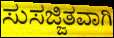
ಸುಸಜ್ಜಿತವಾಗಿ